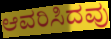
ಆವರಿಸಿದವು